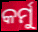
କର୍ମୁ